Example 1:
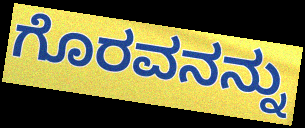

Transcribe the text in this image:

ಗೊರವನನ್ನು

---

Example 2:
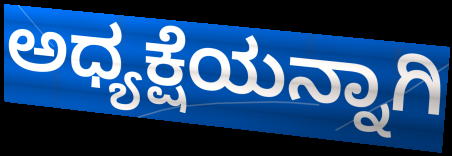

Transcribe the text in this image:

ಅಧ್ಯಕ್ಷೆಯನ್ನಾಗಿ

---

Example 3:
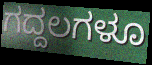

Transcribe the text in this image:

ಗದ್ದಲಗಳೂ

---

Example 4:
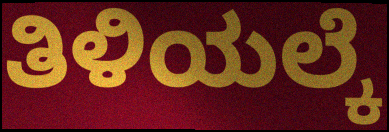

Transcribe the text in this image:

ತಿಳಿಯಲ್ಕೆ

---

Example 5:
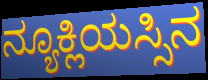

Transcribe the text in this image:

ನ್ಯೂಕ್ಲಿಯಸ್ಸಿನ